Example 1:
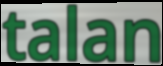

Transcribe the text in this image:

talan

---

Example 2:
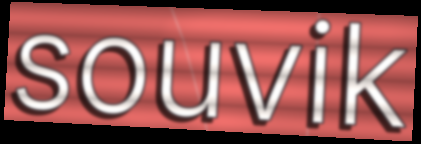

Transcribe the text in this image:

souvik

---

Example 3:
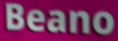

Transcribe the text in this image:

Beano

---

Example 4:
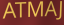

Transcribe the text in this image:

ATMAJ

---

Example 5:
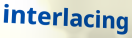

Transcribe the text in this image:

interlacing